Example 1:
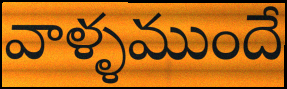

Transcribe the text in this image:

వాళ్ళముందే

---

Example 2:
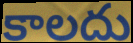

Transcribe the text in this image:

కాలదు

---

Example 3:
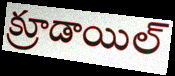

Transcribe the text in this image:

క్రూడాయిల్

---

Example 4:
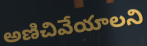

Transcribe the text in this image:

అణిచివేయాలని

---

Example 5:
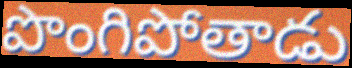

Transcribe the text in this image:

పొంగిపోతాడు